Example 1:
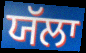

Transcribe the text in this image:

ਯੱਲਾ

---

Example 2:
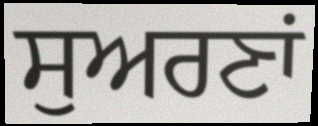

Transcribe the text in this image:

ਸੁਅਰਣਾਂ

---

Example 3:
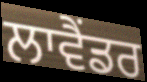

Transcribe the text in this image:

ਲਾਵੈਂਡਰ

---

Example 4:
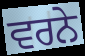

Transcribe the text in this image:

ਵਰਨੇ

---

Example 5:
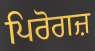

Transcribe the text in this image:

ਪਿਰੋਗਜ਼